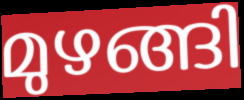
മുഴങ്ങി